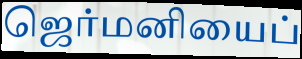
ஜெர்மனியைப்